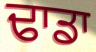
ਢਾਡਾ